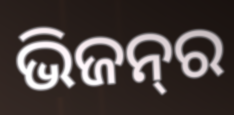
ଭିଜନ୍‌ର